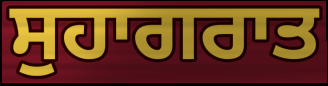
ਸੁਹਾਗਰਾਤ